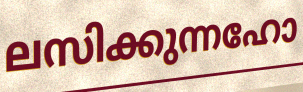
ലസിക്കുന്നഹോ